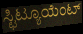
ಸ್ಟಿಟ್ಯೂಯೆಂಟ್